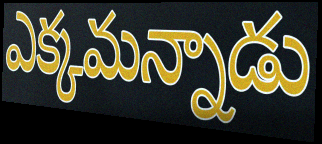
ఎక్కమన్నాడు